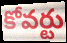
కోవర్టు